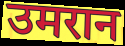
उमरान